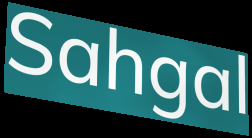
Sahgal